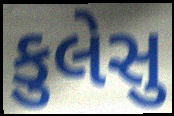
કુલેસુ